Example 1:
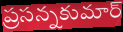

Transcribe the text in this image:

ప్రసన్నకుమార్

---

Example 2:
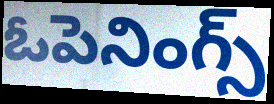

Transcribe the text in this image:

ఓపెనింగ్స్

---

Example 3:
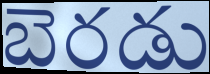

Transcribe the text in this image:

బెరడు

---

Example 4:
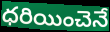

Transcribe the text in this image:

ధరియించెనే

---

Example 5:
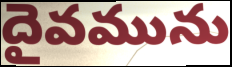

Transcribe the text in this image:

దైవమును